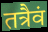
तत्रैवं